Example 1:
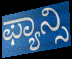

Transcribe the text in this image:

ಫ್ಯಾನ್ಸಿ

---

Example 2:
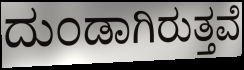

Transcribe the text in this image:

ದುಂಡಾಗಿರುತ್ತವೆ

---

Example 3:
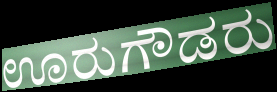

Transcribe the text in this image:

ಊರುಗೌಡರು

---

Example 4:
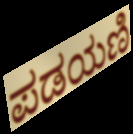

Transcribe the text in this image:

ಪಡಯಣಿ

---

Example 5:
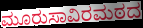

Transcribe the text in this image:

ಮೂರುಸಾವಿರಮಠದ